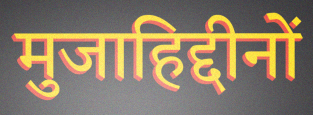
मुजाहिद्दीनों